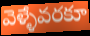
వెళ్ళేవరకూ